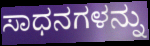
ಸಾಧನಗಳನ್ನು